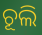
ଚୂଲି